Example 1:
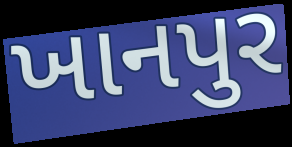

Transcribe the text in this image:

ખાનપુર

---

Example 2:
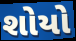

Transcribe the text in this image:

શોયો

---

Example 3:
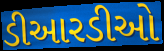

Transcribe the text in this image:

ડીઆરડીઓ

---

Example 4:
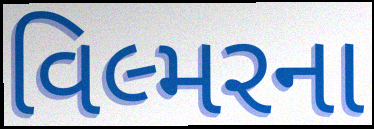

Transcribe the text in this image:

વિલ્મરના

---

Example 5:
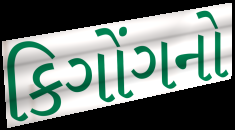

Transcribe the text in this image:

કિગોંગનો